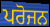
ਪਰੋਜਨ